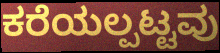
ಕರೆಯಲ್ಪಟ್ಟವು